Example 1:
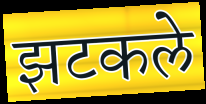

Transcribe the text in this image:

झटकले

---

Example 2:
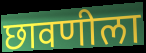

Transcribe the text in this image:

छावणीला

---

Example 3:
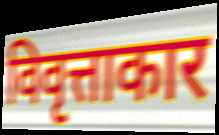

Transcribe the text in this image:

विवृत्ताकार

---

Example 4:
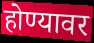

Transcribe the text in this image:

होण्यावर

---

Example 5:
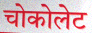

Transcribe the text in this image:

चोकोलेट